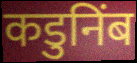
कडुनिंब